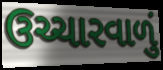
ઉચ્ચારવાળું